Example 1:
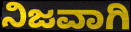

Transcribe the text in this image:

ನಿಜವಾಗಿ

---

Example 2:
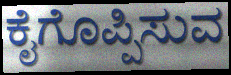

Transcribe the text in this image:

ಕೈಗೊಪ್ಪಿಸುವ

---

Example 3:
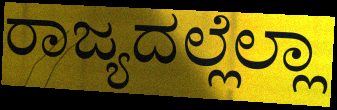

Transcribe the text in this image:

ರಾಜ್ಯದಲ್ಲೆಲ್ಲಾ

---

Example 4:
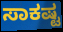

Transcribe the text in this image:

ಸಾಕಷ್ಟ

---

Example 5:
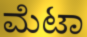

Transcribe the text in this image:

ಮೆಟಾ